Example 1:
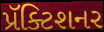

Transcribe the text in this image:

પ્રૅક્ટિશનર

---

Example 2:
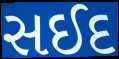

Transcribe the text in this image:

સઈદ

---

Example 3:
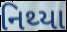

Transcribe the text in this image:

નિથ્યા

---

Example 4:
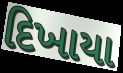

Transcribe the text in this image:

દિખાયા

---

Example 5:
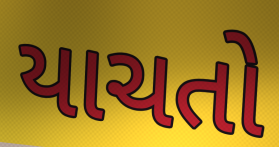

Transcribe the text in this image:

યાચતો